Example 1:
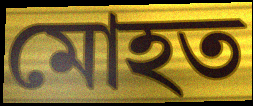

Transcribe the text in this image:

মোহত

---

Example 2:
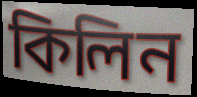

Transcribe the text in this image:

কিলিন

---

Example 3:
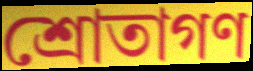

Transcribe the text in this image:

শ্রোতাগণ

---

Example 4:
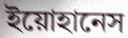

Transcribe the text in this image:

ইয়োহানেস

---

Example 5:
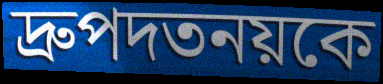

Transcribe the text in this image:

দ্রুপদতনয়কে